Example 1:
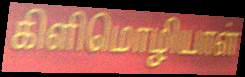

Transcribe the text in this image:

கிளிமொழியாள்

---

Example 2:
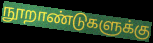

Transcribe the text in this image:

நூறாண்டுகளுக்கு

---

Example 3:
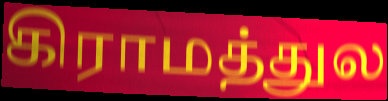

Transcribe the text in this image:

கிராமத்துல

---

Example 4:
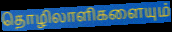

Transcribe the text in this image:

தொழிலாளிகளையும்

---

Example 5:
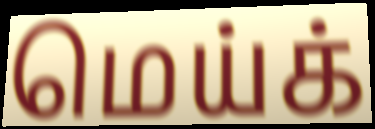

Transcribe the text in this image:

மெய்க்